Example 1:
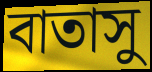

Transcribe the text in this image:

বাতাসু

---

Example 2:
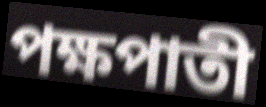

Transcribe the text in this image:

পক্ষপাতী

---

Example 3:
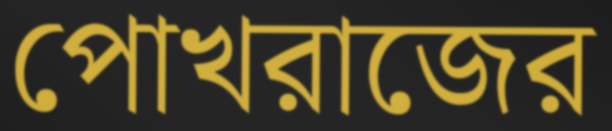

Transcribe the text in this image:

পোখরাজের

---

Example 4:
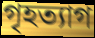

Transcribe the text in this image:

গৃহত্যাগ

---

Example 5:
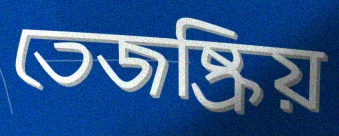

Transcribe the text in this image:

তেজষ্ক্রিয়